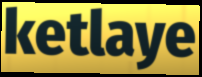
ketlaye